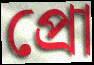
প্রো